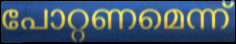
പോറ്റണമെന്ന്